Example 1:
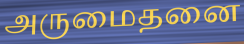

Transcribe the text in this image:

அருமைதனை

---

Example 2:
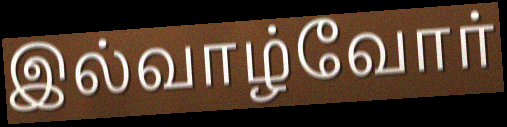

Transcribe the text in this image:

இல்வாழ்வோர்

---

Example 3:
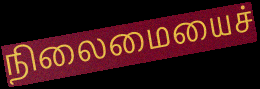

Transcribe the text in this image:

நிலைமையைச்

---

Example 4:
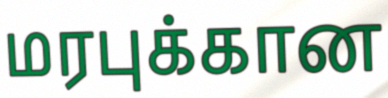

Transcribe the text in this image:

மரபுக்கான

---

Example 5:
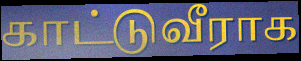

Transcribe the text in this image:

காட்டுவீராக